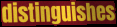
distinguishes